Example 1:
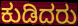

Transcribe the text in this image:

ಕುಡಿದರು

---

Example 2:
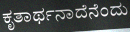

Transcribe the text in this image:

ಕೃತಾರ್ಥನಾದೆನೆಂದು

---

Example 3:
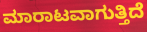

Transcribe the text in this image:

ಮಾರಾಟವಾಗುತ್ತಿದೆ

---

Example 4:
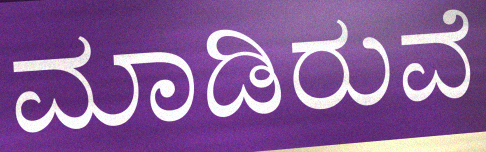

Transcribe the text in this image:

ಮಾಡಿರುವೆ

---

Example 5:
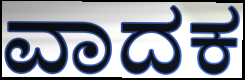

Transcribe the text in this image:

ವಾದಕ